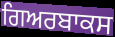
ਗਿਅਰਬਾਕਸ